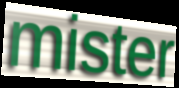
mister